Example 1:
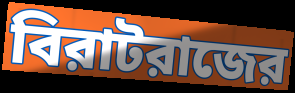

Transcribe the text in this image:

বিরাটরাজের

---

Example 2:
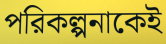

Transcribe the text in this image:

পরিকল্পনাকেই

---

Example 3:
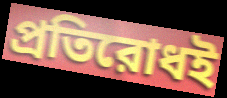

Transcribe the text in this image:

প্রতিরোধই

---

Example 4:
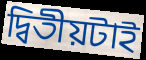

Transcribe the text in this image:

দ্বিতীয়টাই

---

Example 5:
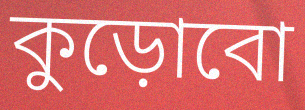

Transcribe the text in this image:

কুড়োবো